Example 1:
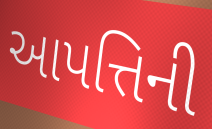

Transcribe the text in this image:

આપત્તિની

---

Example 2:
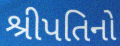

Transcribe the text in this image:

શ્રીપતિનો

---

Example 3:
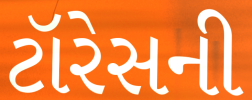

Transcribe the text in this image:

ટૉરેસની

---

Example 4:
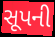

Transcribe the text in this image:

સૂપની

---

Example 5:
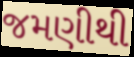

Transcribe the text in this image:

જમણીથી